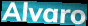
Alvaro